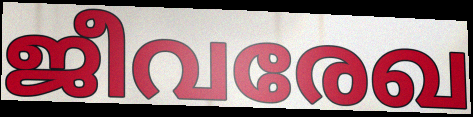
ജീവരേഖ